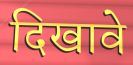
दिखावे